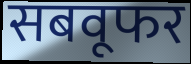
सबवूफर